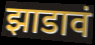
झाडावं